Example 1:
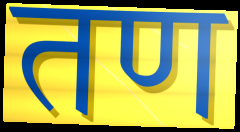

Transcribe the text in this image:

तण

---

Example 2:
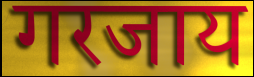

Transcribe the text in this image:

गरजाय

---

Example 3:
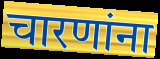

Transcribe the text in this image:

चारणांना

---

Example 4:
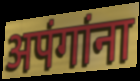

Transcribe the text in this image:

अपंगांना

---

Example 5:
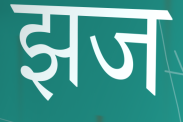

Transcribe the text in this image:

झज